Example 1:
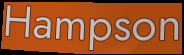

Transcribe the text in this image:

Hampson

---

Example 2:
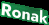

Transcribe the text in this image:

Ronak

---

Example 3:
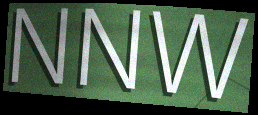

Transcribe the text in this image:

NNW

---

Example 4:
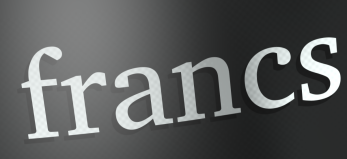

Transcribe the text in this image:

francs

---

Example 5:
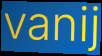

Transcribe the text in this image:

vanij